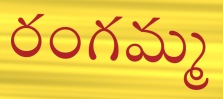
రంగమ్మ